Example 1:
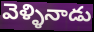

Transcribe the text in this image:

వెళ్ళినాడు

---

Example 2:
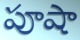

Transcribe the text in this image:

పూషా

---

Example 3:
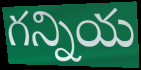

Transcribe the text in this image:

గన్నియ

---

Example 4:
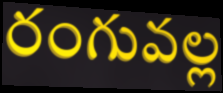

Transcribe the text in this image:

రంగువల్ల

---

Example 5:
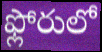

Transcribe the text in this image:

ఫ్లోరులో